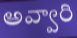
అవ్వారి